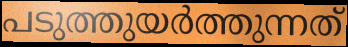
പടുത്തുയർത്തുന്നത്